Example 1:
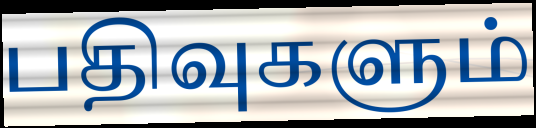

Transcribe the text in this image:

பதிவுகளும்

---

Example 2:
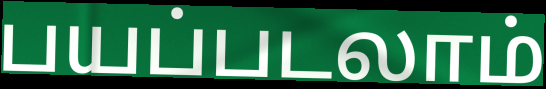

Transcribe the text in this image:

பயப்படலாம்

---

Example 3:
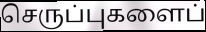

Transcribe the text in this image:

செருப்புகளைப்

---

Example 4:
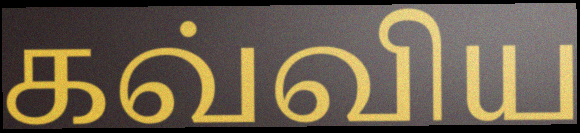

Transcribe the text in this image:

கவ்விய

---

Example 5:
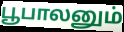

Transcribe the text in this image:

பூபாலனும்